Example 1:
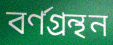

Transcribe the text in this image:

বর্ণগ্রন্থন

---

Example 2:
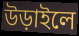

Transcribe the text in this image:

উড়াইলে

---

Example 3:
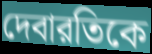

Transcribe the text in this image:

দেবারতিকে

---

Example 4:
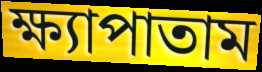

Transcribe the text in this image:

ক্ষ্যাপাতাম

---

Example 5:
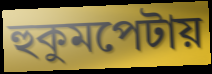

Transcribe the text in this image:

হুকুমপেটায়